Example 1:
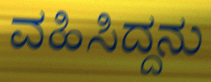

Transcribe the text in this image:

ವಹಿಸಿದ್ದನು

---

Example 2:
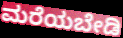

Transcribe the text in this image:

ಮರೆಯಬೇಡಿ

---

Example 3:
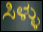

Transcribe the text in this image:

ಸಿಳ್ಳು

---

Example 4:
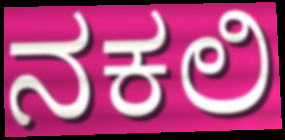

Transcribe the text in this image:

ನಕಲಿ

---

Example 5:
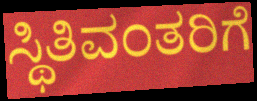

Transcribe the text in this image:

ಸ್ಥಿತಿವಂತರಿಗೆ